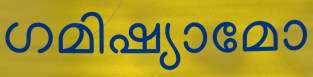
ഗമിഷ്യാമോ